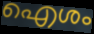
ഐശം